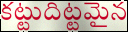
కట్టుదిట్టమైన